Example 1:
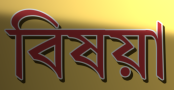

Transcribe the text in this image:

বিষয়া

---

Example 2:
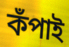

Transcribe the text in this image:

কঁপাই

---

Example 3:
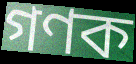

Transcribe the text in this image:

গণক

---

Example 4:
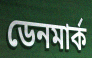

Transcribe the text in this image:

ডেনমাৰ্ক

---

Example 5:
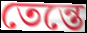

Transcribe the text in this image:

তেন্তে